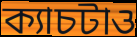
ক্যাচটাও